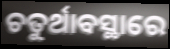
ଚତୁର୍ଥାବସ୍ଥାରେ